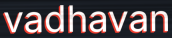
vadhavan